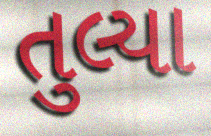
તુલ્યા